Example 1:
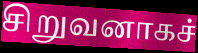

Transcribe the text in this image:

சிறுவனாகச்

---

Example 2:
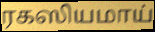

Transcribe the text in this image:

ரகஸியமாய்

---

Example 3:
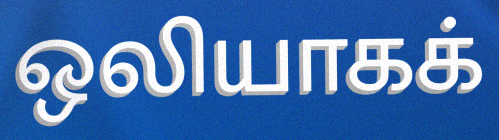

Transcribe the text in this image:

ஒலியாகக்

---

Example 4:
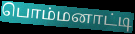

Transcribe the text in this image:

பொம்மனாட்டி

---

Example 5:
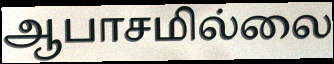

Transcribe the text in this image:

ஆபாசமில்லை